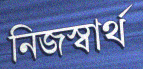
নিজস্বার্থ